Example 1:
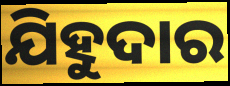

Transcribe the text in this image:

ଯିହୁଦାର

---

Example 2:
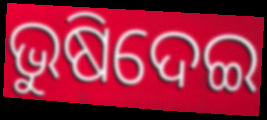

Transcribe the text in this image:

ଭୁଷିଦେଇ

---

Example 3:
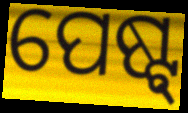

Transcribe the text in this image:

ପେଷ୍ଟ୍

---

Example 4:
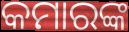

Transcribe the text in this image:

କମାରଙ୍କ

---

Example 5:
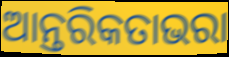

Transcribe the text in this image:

ଆନ୍ତରିକତାଭରା